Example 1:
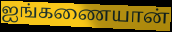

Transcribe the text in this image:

ஐங்கணையான்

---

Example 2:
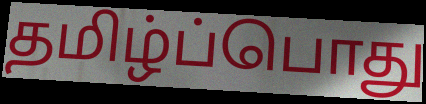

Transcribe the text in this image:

தமிழ்ப்பொது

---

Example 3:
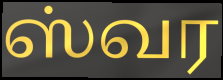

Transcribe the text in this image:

ஸ்வர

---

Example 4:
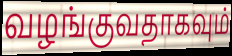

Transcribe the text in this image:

வழங்குவதாகவும்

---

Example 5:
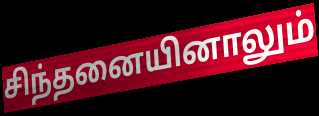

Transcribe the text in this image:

சிந்தனையினாலும்